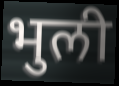
भुली